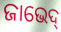
ଜାଭେଦ୍